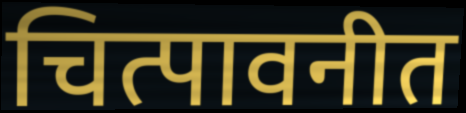
चित्पावनीत